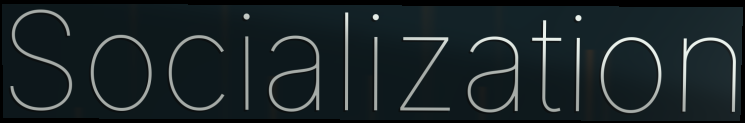
Socialization